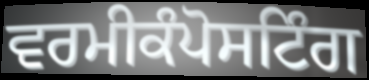
ਵਰਮੀਕੰਪੋਸਟਿੰਗ